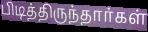
பிடித்திருந்தார்கள்